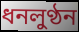
ধনলুণ্ঠন